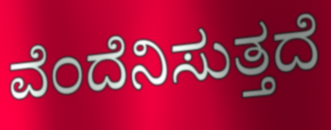
ವೆಂದೆನಿಸುತ್ತದೆ